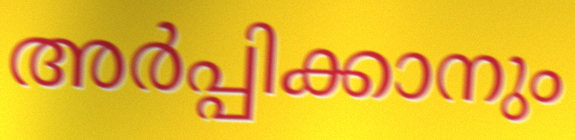
അർപ്പിക്കാനും